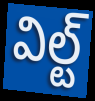
విల్ట్